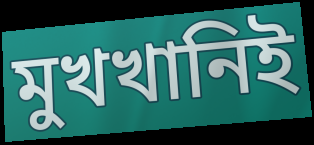
মুখখানিই